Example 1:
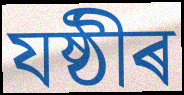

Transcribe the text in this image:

যষ্ঠীৰ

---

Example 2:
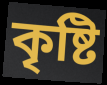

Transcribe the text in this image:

কৃষ্টি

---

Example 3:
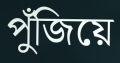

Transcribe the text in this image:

পুঁজিয়ে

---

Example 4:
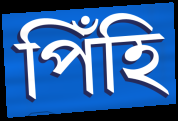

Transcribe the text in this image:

পিঁহি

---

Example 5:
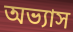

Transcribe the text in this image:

অভ্যাস